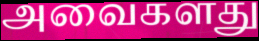
அவைகளது